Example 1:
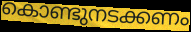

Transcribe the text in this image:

കൊണ്ടുനടക്കണം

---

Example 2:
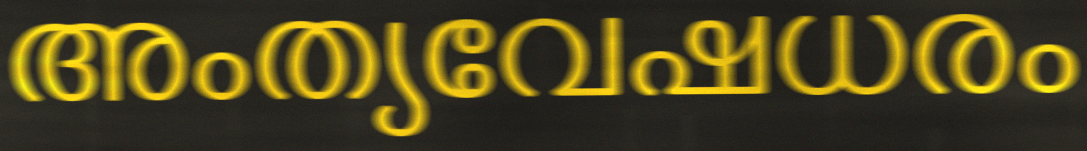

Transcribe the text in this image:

അംത്യവേഷധരം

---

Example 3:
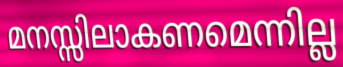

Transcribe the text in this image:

മനസ്സിലാകണമെന്നില്ല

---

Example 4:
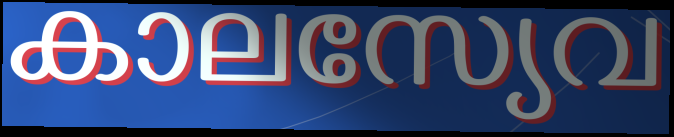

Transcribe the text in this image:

കാലസ്യേവ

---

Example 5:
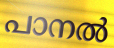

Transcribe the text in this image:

പാനൽ